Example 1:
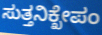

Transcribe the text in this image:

ಸುತ್ತನಿಕ್ಖೇಪಂ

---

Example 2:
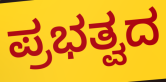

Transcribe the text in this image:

ಪ್ರಭತ್ವದ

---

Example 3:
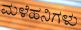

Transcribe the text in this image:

ಮಳೆಹನಿಗಳು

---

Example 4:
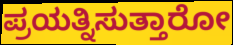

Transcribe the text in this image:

ಪ್ರಯತ್ನಿಸುತ್ತಾರೋ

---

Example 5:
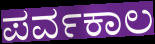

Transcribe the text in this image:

ಪರ್ವಕಾಲ